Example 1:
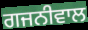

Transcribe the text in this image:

ਗਜਨੀਵਾਲ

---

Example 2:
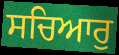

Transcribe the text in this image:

ਸਚਿਆਰੁ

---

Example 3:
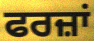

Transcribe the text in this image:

ਫਰਜ਼ਾਂ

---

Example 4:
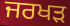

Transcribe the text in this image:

ਜਰਖੜ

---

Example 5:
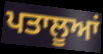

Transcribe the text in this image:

ਪਤਾਲੂਆਂ